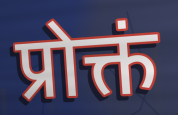
प्रोक्तं